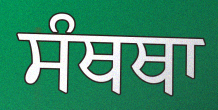
ਸੰਥਥਾ